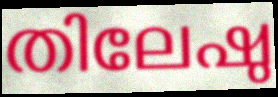
തിലേഷു